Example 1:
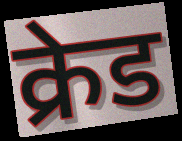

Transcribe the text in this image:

क्रेड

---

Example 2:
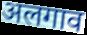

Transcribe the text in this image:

अलगाव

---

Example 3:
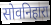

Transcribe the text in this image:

सोवनिहारा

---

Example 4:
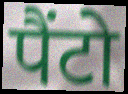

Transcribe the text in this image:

पैंटो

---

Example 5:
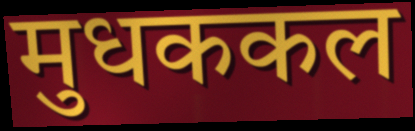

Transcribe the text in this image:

मुधककल